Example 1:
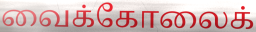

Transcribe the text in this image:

வைக்கோலைக்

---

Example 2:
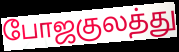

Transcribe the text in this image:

போஜகுலத்து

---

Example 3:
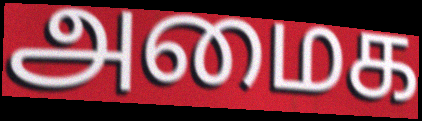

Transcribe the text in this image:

அமைக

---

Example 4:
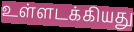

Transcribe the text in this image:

உள்ளடக்கியது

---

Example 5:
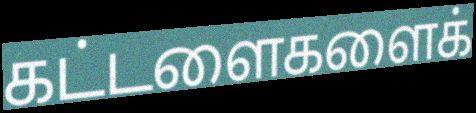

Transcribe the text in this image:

கட்டளைகளைக்